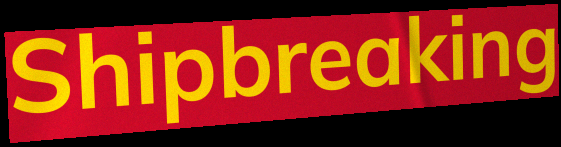
Shipbreaking